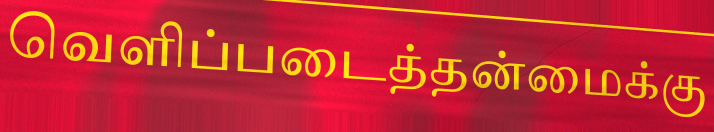
வெளிப்படைத்தன்மைக்கு